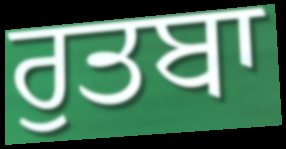
ਰੁਤਬਾ